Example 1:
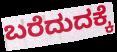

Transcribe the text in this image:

ಬರೆದುದಕ್ಕೆ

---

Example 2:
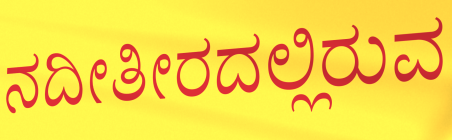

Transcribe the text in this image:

ನದೀತೀರದಲ್ಲಿರುವ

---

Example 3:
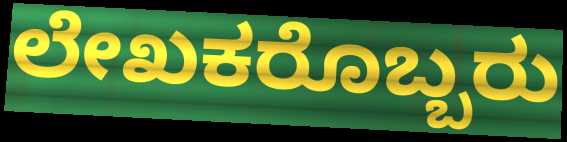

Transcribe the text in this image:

ಲೇಖಕರೊಬ್ಬರು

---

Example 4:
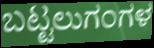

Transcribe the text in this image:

ಬಟ್ಟಲುಗಂಗಳ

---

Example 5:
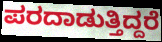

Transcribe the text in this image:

ಪರದಾಡುತ್ತಿದ್ದರೆ